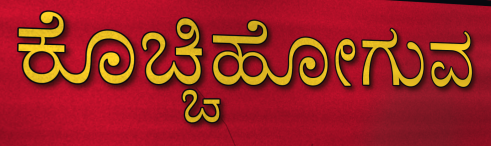
ಕೊಚ್ಚಿಹೋಗುವ